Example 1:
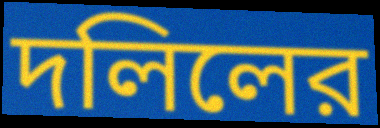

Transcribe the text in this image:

দলিলের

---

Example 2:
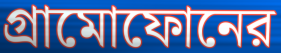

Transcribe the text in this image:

গ্রামোফোনের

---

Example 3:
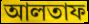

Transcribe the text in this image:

আলতাফ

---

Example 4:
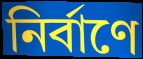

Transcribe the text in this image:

নির্বাণে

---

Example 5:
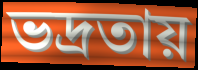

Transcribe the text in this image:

ভদ্রতায়